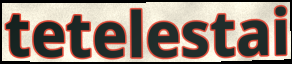
tetelestai